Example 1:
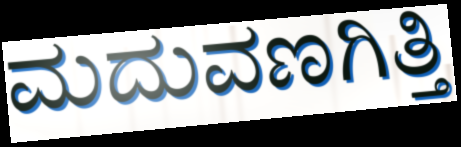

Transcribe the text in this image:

ಮದುವಣಗಿತ್ತಿ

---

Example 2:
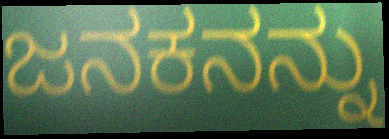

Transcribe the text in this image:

ಜನಕನನ್ನು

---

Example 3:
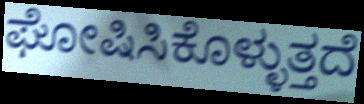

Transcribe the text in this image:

ಘೋಷಿಸಿಕೊಳ್ಳುತ್ತದೆ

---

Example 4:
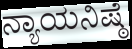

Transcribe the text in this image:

ನ್ಯಾಯನಿಷ್ಠೆ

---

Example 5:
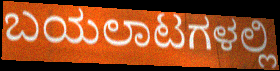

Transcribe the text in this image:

ಬಯಲಾಟಗಳಲ್ಲಿ